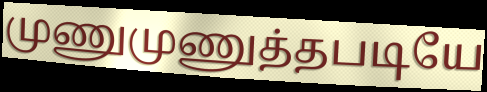
முணுமுணுத்தபடியே